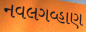
નવલગવ્હાણ